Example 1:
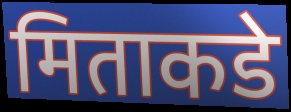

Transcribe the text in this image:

मिताकडे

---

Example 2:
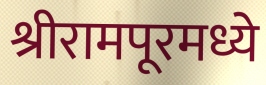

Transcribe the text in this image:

श्रीरामपूरमध्ये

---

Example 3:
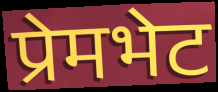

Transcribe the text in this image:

प्रेमभेट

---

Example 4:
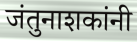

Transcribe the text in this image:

जंतुनाशकांनी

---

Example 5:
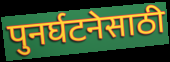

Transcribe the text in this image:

पुनर्घटनेसाठी